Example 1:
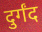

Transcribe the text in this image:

दुर्गंद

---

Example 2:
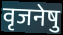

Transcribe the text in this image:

वृजनेषु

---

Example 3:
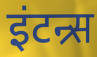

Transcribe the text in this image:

इंटन्र्स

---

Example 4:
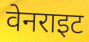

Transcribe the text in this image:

वेनराइट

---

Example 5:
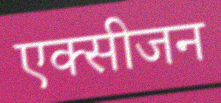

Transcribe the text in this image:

एक्सीजन